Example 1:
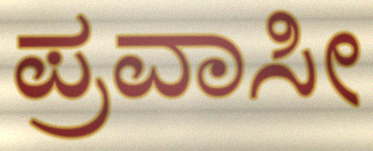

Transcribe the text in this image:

ಪ್ರವಾಸೀ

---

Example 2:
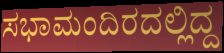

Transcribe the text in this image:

ಸಭಾಮಂದಿರದಲ್ಲಿದ್ದ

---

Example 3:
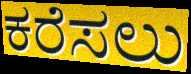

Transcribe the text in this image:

ಕರೆಸಲು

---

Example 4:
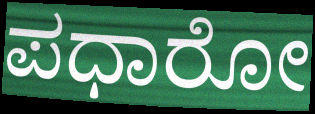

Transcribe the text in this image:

ಪಧಾರೋ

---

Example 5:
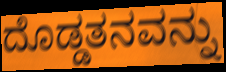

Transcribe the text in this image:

ದೊಡ್ಡತನವನ್ನು